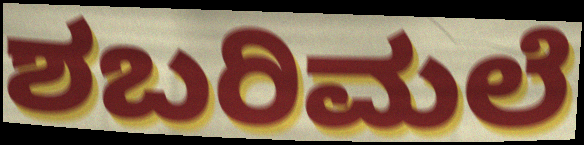
ಶಬರಿಮಲೆ